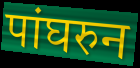
पांघरुन